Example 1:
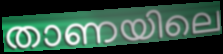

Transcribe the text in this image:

താണയിലെ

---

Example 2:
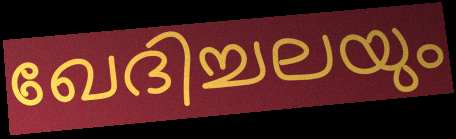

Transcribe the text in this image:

ഖേദിച്ചലയും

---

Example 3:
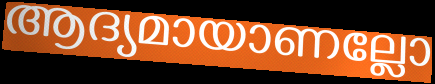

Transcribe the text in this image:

ആദ്യമായാണല്ലോ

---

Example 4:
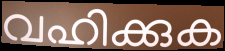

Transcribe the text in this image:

വഹിക്കുക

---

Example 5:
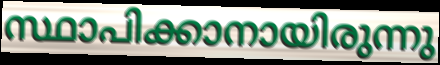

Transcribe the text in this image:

സ്ഥാപിക്കാനായിരുന്നു